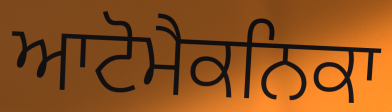
ਆਟੋਮੈਕਨਿਕਾ